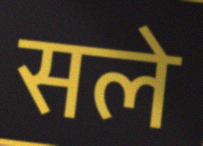
सले